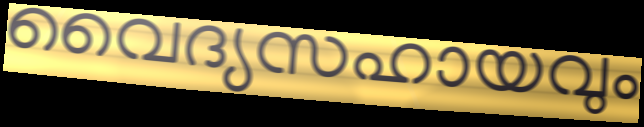
വൈദ്യസഹായവും